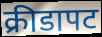
क्रीडापट